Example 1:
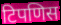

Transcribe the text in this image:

टिपणिस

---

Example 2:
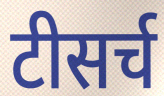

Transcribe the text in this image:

टीसर्च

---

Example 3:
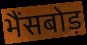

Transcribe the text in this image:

भैंसबोड़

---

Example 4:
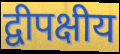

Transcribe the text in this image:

द्वीपक्षीय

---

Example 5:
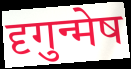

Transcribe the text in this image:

दृगुन्मेष